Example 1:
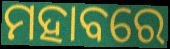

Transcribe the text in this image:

ମହାବରେ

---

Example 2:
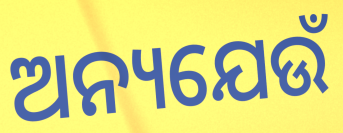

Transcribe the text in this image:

ଅନ୍ୟଯେଉଁ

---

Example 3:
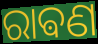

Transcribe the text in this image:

ରାଵଣ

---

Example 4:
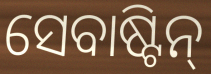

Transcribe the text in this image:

ସେବାଷ୍ଟିନ୍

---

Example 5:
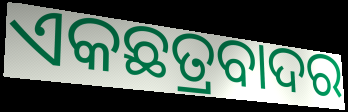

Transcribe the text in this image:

ଏକଛତ୍ରବାଦର